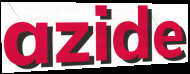
azide